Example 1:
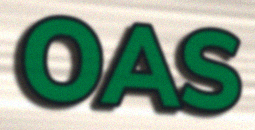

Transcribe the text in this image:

OAS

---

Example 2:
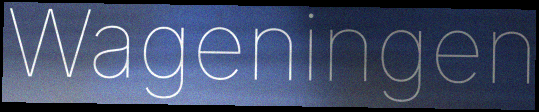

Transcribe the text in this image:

Wageningen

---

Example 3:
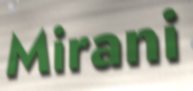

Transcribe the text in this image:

Mirani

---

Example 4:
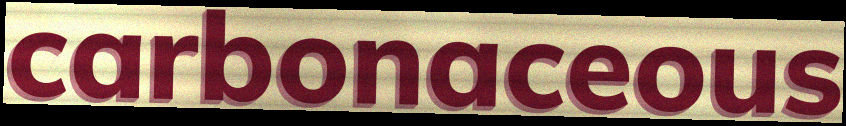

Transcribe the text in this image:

carbonaceous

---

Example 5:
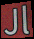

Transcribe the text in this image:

Jl